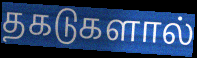
தகடுகளால்